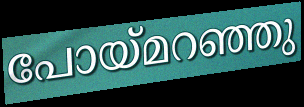
പോയ്മറഞ്ഞു